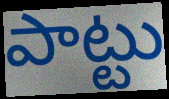
పాట్టు